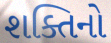
શક્તિનો